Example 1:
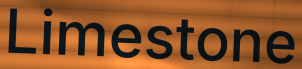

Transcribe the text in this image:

Limestone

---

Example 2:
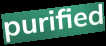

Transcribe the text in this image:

purified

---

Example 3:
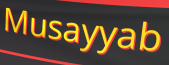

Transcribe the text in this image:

Musayyab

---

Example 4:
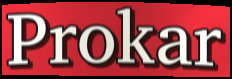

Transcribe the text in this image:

Prokar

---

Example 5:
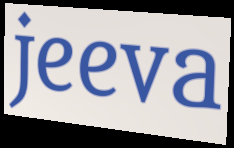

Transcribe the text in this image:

jeeva